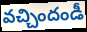
వచ్చిందండీ